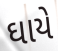
ઘાયે